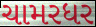
ચામરધર